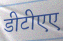
डीटीएए